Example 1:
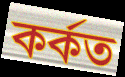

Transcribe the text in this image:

কৰ্কত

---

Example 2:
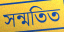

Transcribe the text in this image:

সন্মতিত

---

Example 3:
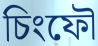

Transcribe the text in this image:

চিংফৌ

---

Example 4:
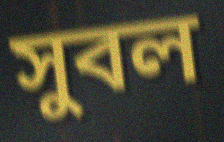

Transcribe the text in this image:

সুবল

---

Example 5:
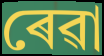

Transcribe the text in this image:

ৰেৱা